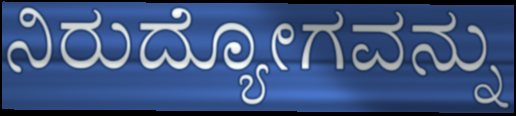
ನಿರುದ್ಯೋಗವನ್ನು